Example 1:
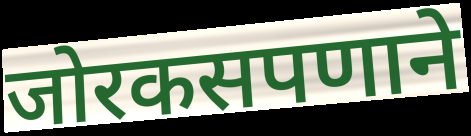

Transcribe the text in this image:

जोरकसपणाने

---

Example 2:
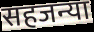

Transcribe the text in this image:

सहजन्या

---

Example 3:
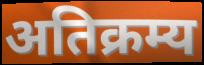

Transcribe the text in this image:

अतिक्रम्य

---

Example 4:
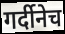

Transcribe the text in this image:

गर्दीनेच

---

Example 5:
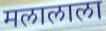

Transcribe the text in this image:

मलालाला